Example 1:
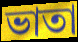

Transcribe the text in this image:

ভাতা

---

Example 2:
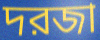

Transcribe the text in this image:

দরজা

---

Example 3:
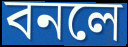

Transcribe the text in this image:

বনলে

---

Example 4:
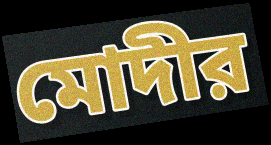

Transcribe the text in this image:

মোদীর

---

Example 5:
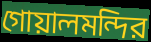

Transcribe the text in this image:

গোয়ালমন্দির